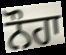
ਨੌਹਾ